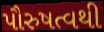
પૌરુષત્વથી